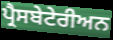
ਪ੍ਰੈਸਬੇਟੇਰੀਅਨ